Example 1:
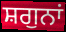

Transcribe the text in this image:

ਸ਼ਗੁਨਾਂ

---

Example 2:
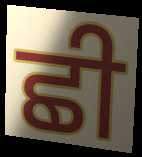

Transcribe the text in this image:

ਛੀ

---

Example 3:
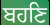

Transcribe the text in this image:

ਬਹਣਿ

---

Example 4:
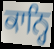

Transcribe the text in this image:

ਕਾਨ੍ਹਿ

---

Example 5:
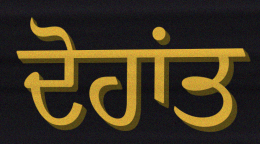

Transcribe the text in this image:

ਦੋਹਾਂਤ